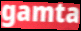
gamta